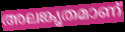
അലങ്കൃതമാണ്